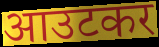
आउटकर